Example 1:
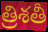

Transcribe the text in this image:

త్రిశతీ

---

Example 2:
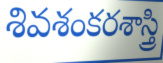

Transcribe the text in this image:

శివశంకరశాస్త్రి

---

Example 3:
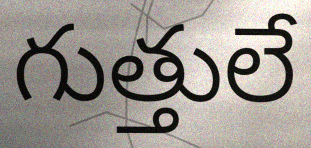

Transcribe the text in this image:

గుత్తులే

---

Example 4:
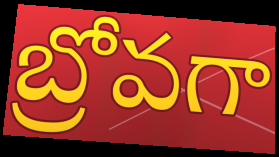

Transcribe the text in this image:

బ్రోవగా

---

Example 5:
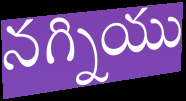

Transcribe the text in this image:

నగ్నియు